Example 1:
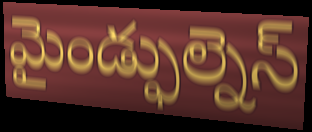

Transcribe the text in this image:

మైండ్ఫుల్నెస్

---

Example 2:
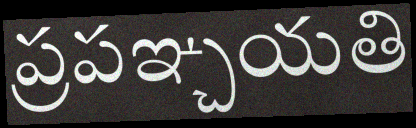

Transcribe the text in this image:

ప్రపఞ్చయతి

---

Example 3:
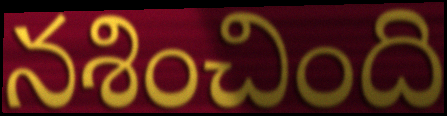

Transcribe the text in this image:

నశించింది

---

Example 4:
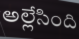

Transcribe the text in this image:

అల్లేసింది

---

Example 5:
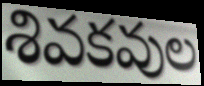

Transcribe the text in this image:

శివకవుల